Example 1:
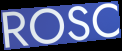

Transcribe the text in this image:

ROSC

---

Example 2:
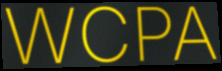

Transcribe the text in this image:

WCPA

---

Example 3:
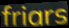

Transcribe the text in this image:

friars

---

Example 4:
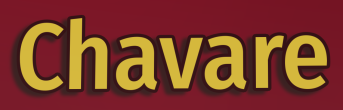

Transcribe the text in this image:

Chavare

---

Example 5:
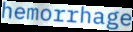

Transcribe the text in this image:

hemorrhage